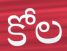
కోల